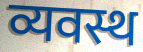
व्यवस्थ